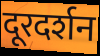
दूरदर्शन